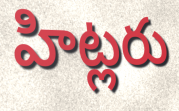
హిట్లరు